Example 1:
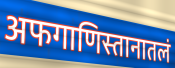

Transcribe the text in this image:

अफगाणिस्तानातलं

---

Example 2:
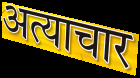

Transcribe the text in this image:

अत्याचार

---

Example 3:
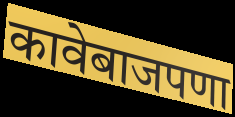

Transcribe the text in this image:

कावेबाजपणा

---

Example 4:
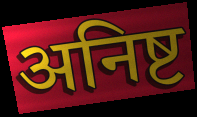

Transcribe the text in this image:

अनिष्ट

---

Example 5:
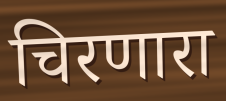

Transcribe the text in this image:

चिरणारा